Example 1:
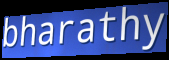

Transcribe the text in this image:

bharathy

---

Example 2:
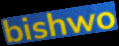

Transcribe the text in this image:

bishwo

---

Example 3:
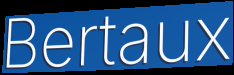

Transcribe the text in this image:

Bertaux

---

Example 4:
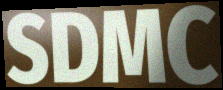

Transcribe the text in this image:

SDMC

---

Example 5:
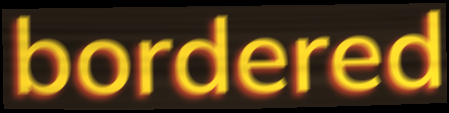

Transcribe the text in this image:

bordered